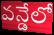
వన్డేలో